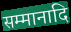
सम्मानादि